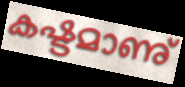
കഷ്ടമാണു്